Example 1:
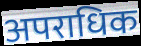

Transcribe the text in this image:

अपराधिक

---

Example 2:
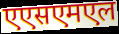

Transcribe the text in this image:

एएसएमएल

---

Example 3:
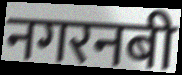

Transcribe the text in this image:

नगरनबी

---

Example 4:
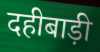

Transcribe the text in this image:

दहीबाड़ी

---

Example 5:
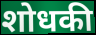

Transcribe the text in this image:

शोधकी